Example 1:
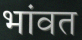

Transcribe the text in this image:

भांवत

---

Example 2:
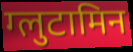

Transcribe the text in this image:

ग्लुटामिन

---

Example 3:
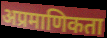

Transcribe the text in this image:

अप्रमाणिकता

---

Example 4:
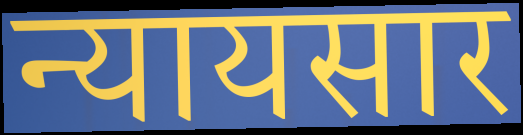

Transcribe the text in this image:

न्यायसार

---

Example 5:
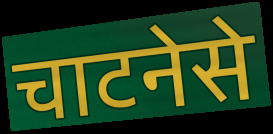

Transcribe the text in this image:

चाटनेसे